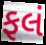
ફલં